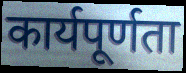
कार्यपूर्णता